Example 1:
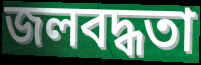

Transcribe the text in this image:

জলবদ্ধতা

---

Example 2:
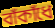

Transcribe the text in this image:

বাঁকাঁধে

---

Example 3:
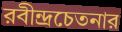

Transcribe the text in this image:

রবীন্দ্রচেতনার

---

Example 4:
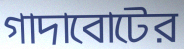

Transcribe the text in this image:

গাদাবোটের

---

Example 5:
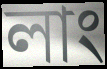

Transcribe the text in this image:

লাং